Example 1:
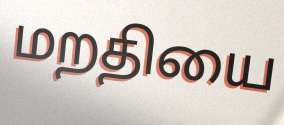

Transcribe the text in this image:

மறதியை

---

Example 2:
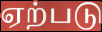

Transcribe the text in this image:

ஏற்படு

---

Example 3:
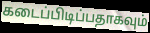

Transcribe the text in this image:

கடைப்பிடிப்பதாகவும்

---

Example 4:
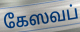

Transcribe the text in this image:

கேஸவப்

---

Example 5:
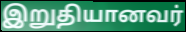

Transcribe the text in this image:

இறுதியானவர்